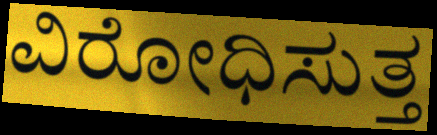
ವಿರೋಧಿಸುತ್ತ